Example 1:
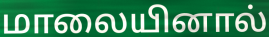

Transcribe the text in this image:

மாலையினால்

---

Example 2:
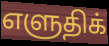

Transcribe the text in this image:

எளுதிக்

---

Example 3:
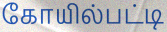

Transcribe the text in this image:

கோயில்பட்டி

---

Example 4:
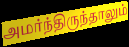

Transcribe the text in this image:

அமர்ந்திருந்தாலும்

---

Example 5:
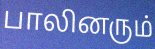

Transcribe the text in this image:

பாலினரும்